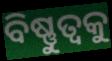
ବିଷ୍ଣୁତ୍ୱକୁ